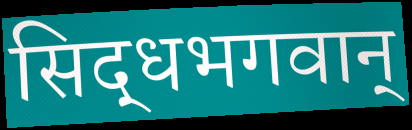
सिद्धभगवान्